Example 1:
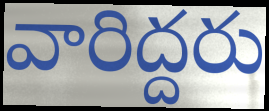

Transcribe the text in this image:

వారిద్దరు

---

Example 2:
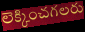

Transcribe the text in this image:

లెక్కించగలరు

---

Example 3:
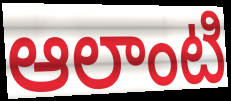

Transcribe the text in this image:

ఆలాంటి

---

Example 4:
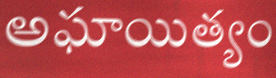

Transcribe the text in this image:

అఘాయిత్యం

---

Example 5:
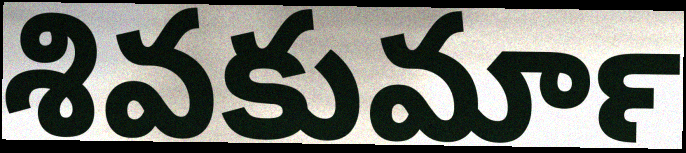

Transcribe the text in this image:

శివకుమార్‍